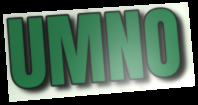
UMNO